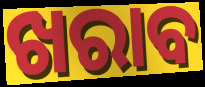
ଖରାବ